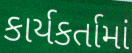
કાર્યકર્તામાં